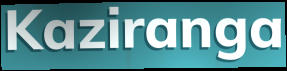
Kaziranga